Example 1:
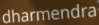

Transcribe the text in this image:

dharmendra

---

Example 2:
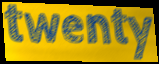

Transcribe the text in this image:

twenty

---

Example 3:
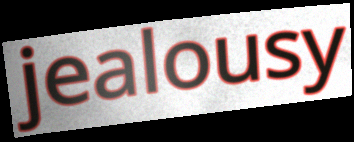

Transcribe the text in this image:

jealousy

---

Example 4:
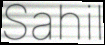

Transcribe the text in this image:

Sahil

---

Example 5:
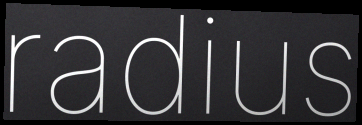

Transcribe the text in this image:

radius